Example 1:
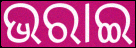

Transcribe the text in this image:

ଭରାଇ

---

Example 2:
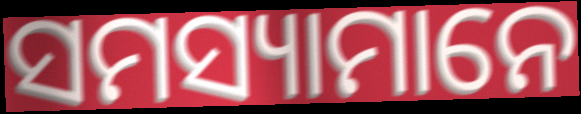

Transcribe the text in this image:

ସମସ୍ୟାମାନେ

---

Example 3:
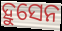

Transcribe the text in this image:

ହୁସେନ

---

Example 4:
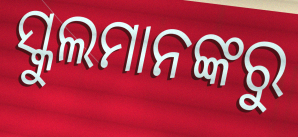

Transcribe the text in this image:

ସ୍କୁଲମାନଙ୍କରୁ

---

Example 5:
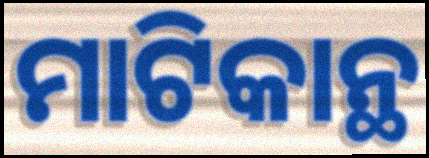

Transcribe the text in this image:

ମାଟିକାନ୍ଥ